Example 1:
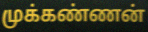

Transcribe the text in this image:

முக்கண்ணன்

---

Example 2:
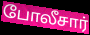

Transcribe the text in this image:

போலீசார்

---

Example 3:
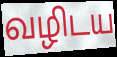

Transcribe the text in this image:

வழிடய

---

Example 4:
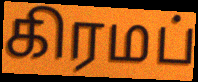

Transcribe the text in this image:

கிரமப்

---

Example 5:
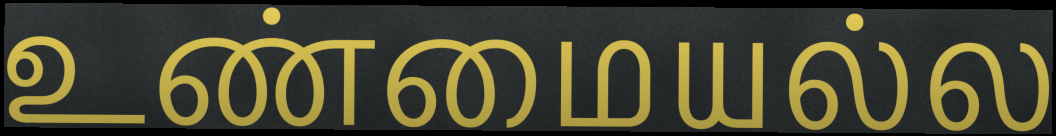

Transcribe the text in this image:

உண்மையல்ல